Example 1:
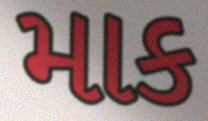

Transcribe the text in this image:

માક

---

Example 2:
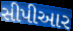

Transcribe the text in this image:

સીપીઆર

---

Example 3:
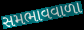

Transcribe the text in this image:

સમભાવવાળા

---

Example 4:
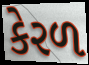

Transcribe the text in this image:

કેરળ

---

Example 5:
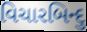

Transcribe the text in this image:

વિચારબિન્દુ